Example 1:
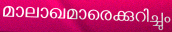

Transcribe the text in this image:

മാലാഖമാരെക്കുറിച്ചും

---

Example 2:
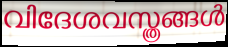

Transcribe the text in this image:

വിദേശവസ്ത്രങ്ങൾ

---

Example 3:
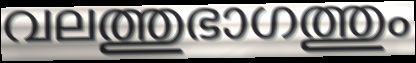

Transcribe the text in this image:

വലത്തുഭാഗത്തും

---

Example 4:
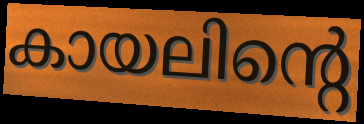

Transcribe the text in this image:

കായലിന്റെ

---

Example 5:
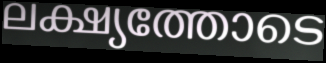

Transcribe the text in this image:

ലക്ഷ്യത്തോടെ